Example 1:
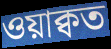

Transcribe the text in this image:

ওয়াক্বত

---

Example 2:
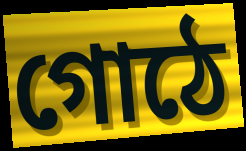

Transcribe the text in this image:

গোঠে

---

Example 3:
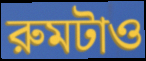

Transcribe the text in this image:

রুমটাও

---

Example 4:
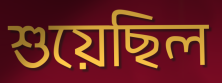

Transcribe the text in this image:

শুয়েছিল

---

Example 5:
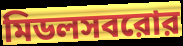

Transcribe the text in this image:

মিডলসবরোর